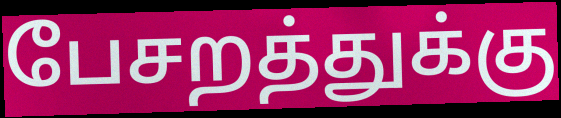
பேசறத்துக்கு